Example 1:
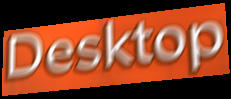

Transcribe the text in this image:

Desktop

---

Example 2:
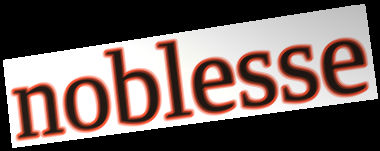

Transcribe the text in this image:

noblesse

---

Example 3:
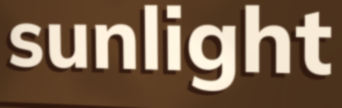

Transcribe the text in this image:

sunlight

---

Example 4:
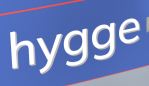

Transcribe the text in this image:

hygge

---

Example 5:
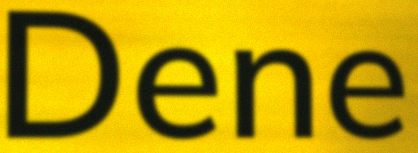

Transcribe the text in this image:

Dene